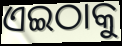
ଏଇଠାକୁ